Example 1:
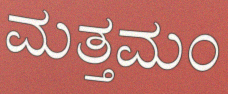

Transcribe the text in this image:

ಮತ್ತಮಂ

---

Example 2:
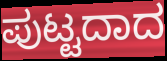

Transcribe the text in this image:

ಪುಟ್ಟದಾದ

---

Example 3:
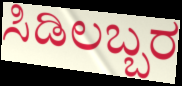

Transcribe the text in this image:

ಸಿಡಿಲಬ್ಬರ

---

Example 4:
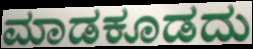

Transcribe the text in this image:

ಮಾಡಕೂಡದು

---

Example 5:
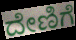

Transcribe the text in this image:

ದೇಣಿಗೆ